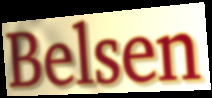
Belsen